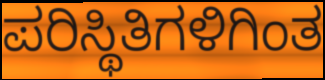
ಪರಿಸ್ಥಿತಿಗಳಿಗಿಂತ